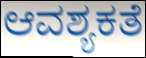
ಆವಶ್ಯಕತೆ